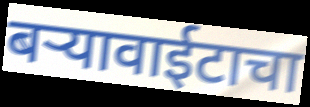
बऱ्यावाईटाचा